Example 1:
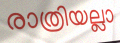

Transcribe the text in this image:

രാത്രിയല്ലാ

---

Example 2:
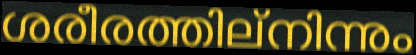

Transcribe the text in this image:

ശരീരത്തില്നിന്നും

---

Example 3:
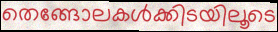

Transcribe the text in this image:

തെങ്ങോലകൾക്കിടയിലൂടെ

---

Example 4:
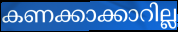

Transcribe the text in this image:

കണക്കാക്കാറില്ല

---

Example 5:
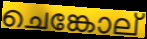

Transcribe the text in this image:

ചെങ്കോല്